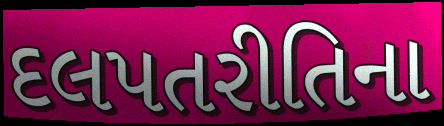
દલપતરીતિના